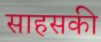
साहसकी